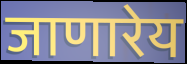
जाणारेय